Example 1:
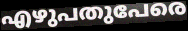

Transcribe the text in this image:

എഴുപതുപേരെ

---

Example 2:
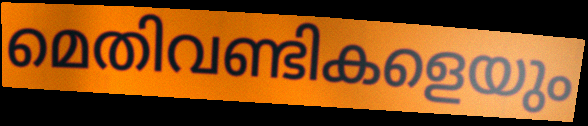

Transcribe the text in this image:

മെതിവണ്ടികളെയും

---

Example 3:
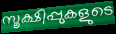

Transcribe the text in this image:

സൂക്ഷിപ്പുകളുടെ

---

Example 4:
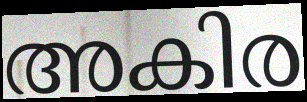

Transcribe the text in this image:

അകിര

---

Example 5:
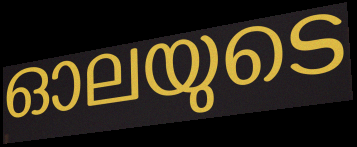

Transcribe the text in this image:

ഓലയുടെ